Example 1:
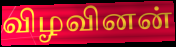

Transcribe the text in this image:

விழவினன்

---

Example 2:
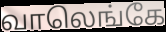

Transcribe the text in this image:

வாலெங்கே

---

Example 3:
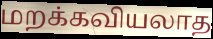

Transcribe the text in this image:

மறக்கவியலாத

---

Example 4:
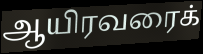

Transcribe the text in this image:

ஆயிரவரைக்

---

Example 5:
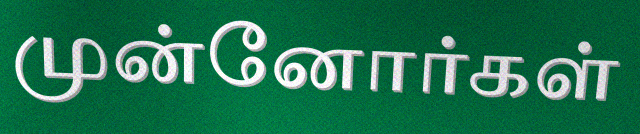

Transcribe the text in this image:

முன்னோர்கள்